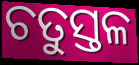
ଚତୁସ୍ତଳ